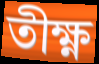
তীক্ষ্ণ